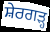
ਸ਼ੇਰਗੜ੍ਹ